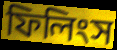
ফিলিংস